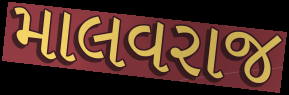
માલવરાજ